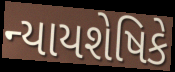
ન્યાયશેષિકે